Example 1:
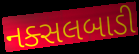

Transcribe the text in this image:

નક્સલબાડી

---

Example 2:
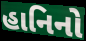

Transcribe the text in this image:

હાનિનો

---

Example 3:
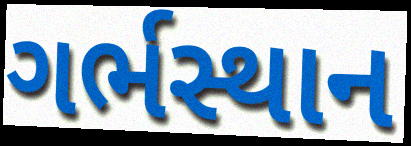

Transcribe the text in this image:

ગર્ભસ્થાન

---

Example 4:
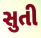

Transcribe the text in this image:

સુતી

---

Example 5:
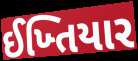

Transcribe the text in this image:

ઈખ્તિયાર